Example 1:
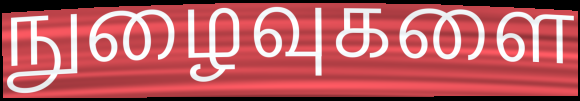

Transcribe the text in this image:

நுழைவுகளை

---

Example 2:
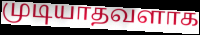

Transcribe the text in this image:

முடியாதவளாக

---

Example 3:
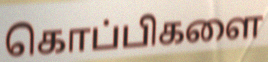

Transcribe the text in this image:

கொப்பிகளை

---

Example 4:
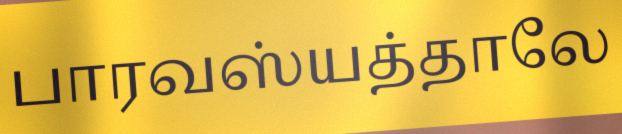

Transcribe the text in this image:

பாரவஸ்யத்தாலே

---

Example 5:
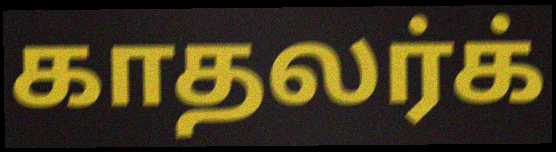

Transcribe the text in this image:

காதலர்க்